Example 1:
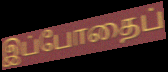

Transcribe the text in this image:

இப்போதைப்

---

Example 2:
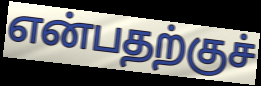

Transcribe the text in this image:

என்பதற்குச்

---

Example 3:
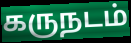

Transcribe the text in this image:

கருநடம்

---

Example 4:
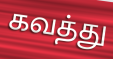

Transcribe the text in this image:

கவத்து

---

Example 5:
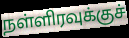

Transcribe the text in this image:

நள்ளிரவுக்குச்